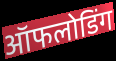
ऑफलोडिंग